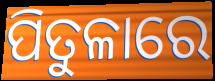
ପିତୁଳାରେ